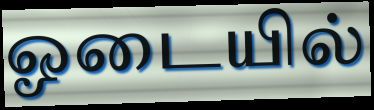
ஓடையில்